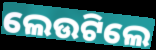
ଲେଉଟିଲେ